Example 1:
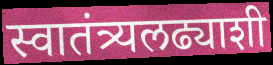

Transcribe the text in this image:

स्वातंत्र्यलढ्याशी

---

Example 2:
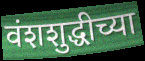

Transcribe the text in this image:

वंशशुद्धीच्या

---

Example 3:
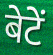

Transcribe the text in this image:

बेटें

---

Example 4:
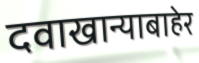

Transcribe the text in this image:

दवाखान्याबाहेर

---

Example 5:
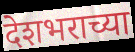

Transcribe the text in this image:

देशभराच्या